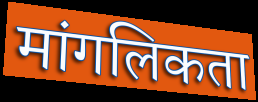
मांगलिकता